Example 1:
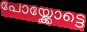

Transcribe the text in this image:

പോയ്ക്കോട്ടെ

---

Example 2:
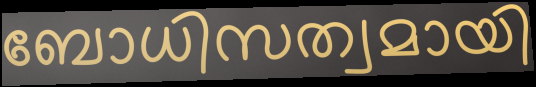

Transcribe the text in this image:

ബോധിസത്വമായി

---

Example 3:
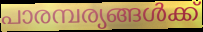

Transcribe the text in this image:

പാരമ്പര്യങ്ങൾക്ക്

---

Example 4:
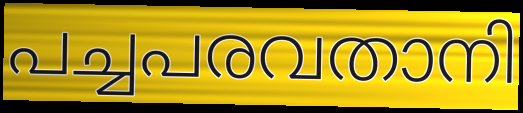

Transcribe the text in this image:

പച്ചപരവതാനി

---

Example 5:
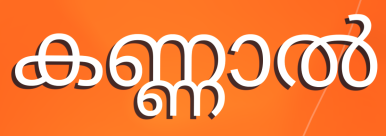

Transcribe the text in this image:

കണ്ണാൽ